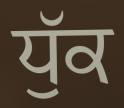
ਧੁੱਕ